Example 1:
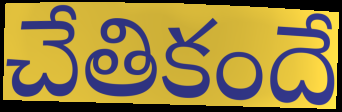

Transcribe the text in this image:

చేతికందే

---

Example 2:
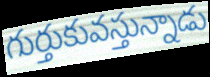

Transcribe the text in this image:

గుర్తుకువస్తున్నాడు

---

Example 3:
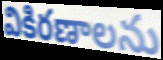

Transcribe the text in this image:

వికిరణాలను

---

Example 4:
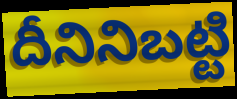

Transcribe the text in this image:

దీనినిబట్టి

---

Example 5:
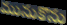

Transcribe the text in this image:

మునుకొను